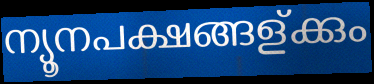
ന്യൂനപക്ഷങ്ങള്ക്കും